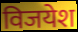
विजयेश